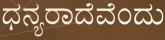
ಧನ್ಯರಾದೆವೆಂದು